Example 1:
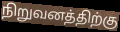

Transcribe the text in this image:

நிறுவனத்திற்கு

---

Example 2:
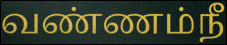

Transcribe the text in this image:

வண்ணம்நீ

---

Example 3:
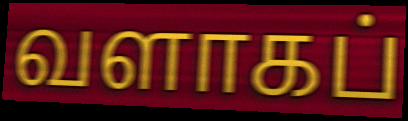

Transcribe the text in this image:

வளாகப்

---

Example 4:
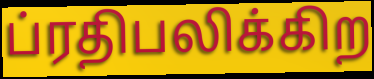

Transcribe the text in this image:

ப்ரதிபலிக்கிற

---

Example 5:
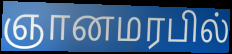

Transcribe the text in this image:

ஞானமரபில்